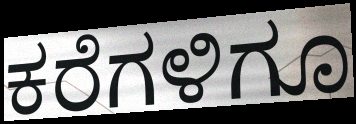
ಕರೆಗಳಿಗೂ